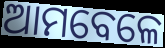
ଆମବେଳେ